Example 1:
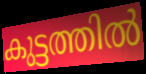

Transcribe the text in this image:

കുട്ടത്തിൽ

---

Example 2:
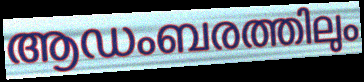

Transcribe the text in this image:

ആഡംബരത്തിലും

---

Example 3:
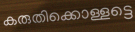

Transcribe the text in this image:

കരുതിക്കൊള്ളട്ടെ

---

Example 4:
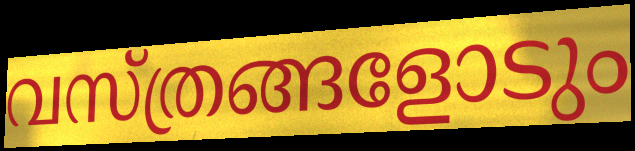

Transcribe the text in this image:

വസ്ത്രങ്ങളോടും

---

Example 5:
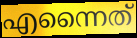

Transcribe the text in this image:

എന്നൈത്